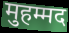
मुहम्मद